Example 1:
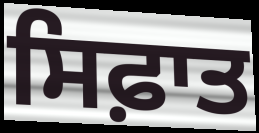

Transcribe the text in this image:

ਸਿਫ਼ਾਤ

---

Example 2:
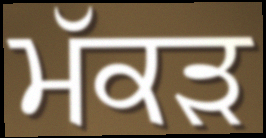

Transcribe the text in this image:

ਮੱਕੜ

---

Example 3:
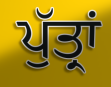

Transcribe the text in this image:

ਪੁੱਤ੍ਰਾਂ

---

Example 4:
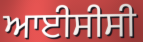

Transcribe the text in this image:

ਆਈਸੀਸੀ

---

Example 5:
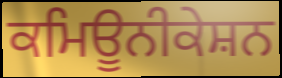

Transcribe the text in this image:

ਕਮਿਊਨੀਕੇਸ਼ਨ